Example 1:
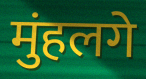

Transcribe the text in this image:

मुंहलगे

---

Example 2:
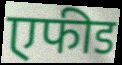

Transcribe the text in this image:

एफीड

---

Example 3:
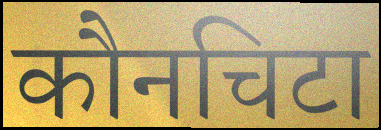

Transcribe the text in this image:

कौनचिटा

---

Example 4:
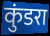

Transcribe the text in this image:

कुंडरा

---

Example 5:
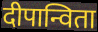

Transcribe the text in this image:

दीपान्विता